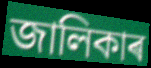
জালিকাৰ